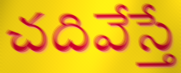
చదివేస్తే